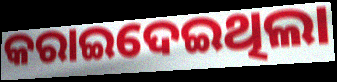
କରାଇଦେଇଥିଲା